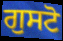
ਗੁਸਟੋ